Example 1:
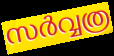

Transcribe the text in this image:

സർവ്വത്ര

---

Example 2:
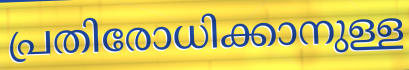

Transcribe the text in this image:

പ്രതിരോധിക്കാനുള്ള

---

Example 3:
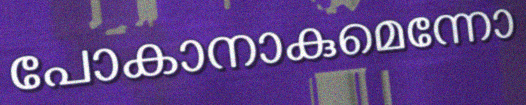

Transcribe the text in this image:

പോകാനാകുമെന്നോ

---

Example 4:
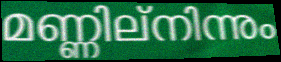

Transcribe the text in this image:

മണ്ണില്നിന്നും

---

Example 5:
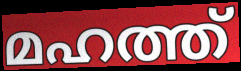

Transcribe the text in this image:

മഹത്ത്